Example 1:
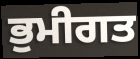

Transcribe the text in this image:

ਭੁਮੀਗਤ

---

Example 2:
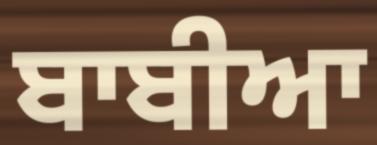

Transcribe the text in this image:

ਬਾਬੀਆ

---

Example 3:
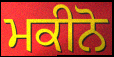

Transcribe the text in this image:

ਮਕੀਨੋ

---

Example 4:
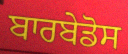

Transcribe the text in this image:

ਬਾਰਬੇਡੋਸ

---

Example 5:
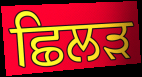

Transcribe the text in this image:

ਛਿਲੜ